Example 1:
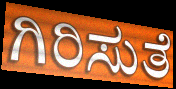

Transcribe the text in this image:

ಗಿರಿಸುತೆ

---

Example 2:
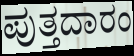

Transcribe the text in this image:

ಪುತ್ತದಾರಂ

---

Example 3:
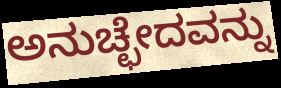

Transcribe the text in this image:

ಅನುಚ್ಛೇದವನ್ನು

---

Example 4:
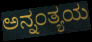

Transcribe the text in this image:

ಅನ್ನಂತ್ಯಯ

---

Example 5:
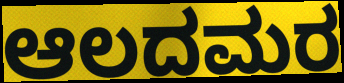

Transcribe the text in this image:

ಆಲದಮರ